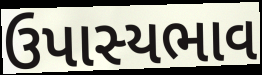
ઉપાસ્યભાવ